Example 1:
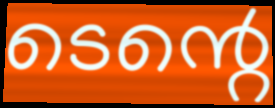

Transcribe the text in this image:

ടെന്റെ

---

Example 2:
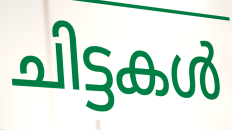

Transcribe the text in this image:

ചിട്ടകൾ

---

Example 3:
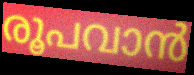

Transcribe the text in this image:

രൂപവാൻ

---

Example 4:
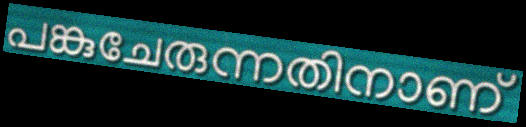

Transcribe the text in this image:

പങ്കുചേരുന്നതിനാണ്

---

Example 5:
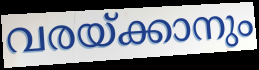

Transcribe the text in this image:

വരയ്ക്കാനും